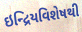
ઇન્દ્રિયવિશેષથી